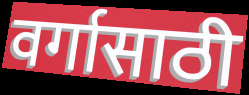
वर्गासाठी